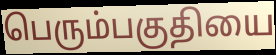
பெரும்பகுதியை